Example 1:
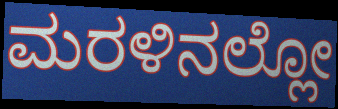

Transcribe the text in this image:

ಮರಳಿನಲ್ಲೋ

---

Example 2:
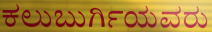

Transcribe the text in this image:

ಕಲುಬುರ್ಗಿಯವರು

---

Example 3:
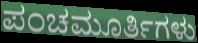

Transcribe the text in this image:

ಪಂಚಮೂರ್ತಿಗಳು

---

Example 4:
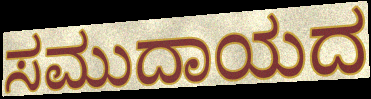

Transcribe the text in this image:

ಸಮುದಾಯದ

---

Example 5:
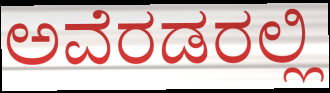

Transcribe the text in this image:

ಅವೆರಡರಲ್ಲಿ